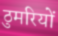
ठुमरियों